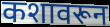
कशावरून